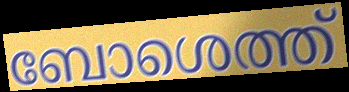
ബോശെത്ത്